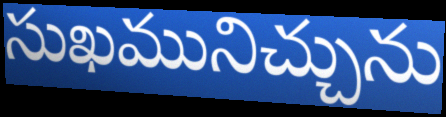
సుఖమునిచ్చును